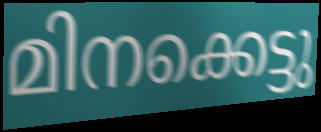
മിനക്കെട്ടു